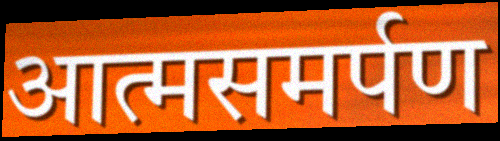
आत्‍मसमर्पण